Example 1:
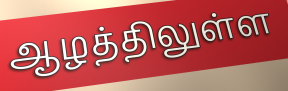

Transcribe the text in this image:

ஆழத்திலுள்ள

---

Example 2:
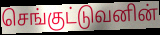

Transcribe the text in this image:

செங்குட்டுவனின்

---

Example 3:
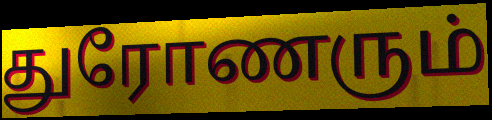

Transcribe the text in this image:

துரோணரும்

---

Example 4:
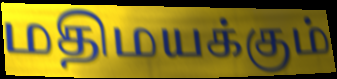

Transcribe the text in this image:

மதிமயக்கும்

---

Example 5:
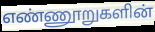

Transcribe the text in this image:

எண்ணூறுகளின்